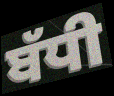
ਬੱਧੀ